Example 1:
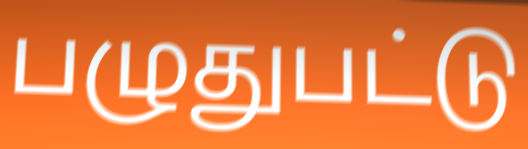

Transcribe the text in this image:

பழுதுபட்டு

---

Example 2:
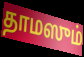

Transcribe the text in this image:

தாமஸும்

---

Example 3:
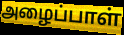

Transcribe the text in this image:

அழைப்பாள்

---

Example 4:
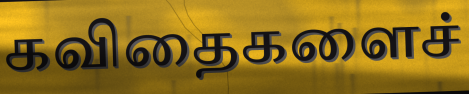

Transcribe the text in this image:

கவிதைகளைச்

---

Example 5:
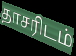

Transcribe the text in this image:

தாசரிடம்